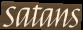
satans